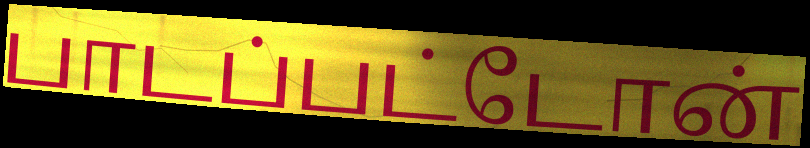
பாடப்பட்டோன்